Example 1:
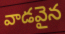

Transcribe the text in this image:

వాడవైన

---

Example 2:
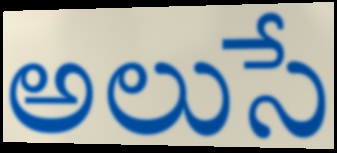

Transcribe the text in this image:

అలుసే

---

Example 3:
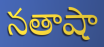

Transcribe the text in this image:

నతాషా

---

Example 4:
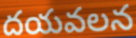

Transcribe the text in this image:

దయవలన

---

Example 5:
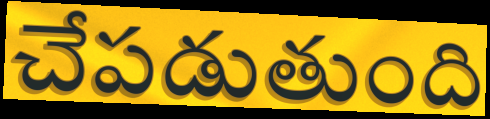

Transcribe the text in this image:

చేపడుతుంది